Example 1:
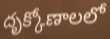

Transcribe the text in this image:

దృక్కోణాలలో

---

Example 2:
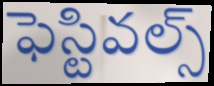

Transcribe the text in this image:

ఫెస్టివల్స్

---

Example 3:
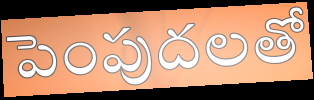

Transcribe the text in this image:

పెంపుదలతో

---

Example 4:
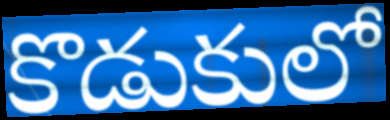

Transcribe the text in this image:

కొడుకులో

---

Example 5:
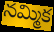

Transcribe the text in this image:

నమ్మిక